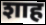
शाह